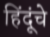
हिंदूंचे